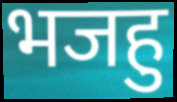
भजहु